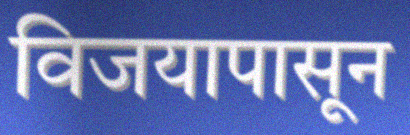
विजयापासून